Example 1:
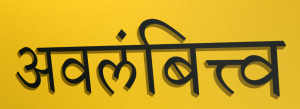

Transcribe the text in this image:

अवलंबित्त्व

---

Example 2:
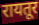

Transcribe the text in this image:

रायतूर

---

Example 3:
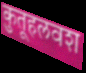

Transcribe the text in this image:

कुतूहलवश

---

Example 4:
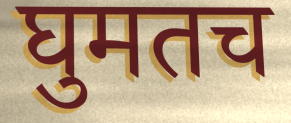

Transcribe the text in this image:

घुमतच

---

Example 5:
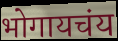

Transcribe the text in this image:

भोगायचंय